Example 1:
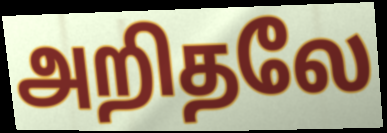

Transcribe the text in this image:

அறிதலே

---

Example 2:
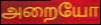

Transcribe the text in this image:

அறையோ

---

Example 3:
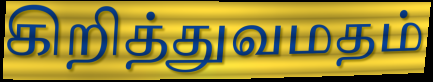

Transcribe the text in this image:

கிறித்துவமதம்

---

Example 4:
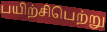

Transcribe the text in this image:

பயிற்சிபெற்று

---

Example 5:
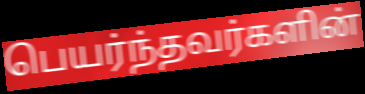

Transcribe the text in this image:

பெயர்ந்தவர்களின்